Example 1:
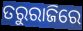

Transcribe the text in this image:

ତରୁରାଜିରେ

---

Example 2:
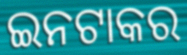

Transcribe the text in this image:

ଇନଟାକର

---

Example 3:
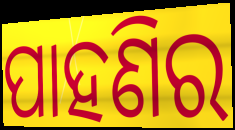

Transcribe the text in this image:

ପାହଣିର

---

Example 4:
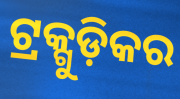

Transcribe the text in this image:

ଟ୍ରକ୍ଗୁଡ଼ିକର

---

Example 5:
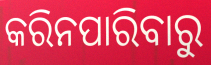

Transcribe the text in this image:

କରିନପାରିବାରୁ